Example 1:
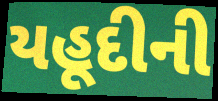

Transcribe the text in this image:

યહૂદીની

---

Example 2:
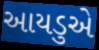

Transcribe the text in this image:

આયડુએ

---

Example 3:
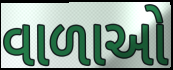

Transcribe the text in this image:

વાળાઓ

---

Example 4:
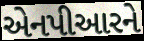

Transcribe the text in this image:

એનપીઆરને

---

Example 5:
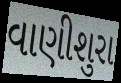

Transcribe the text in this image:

વાણીશુરા